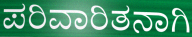
ಪರಿವಾರಿತನಾಗಿ